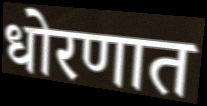
धोरणात